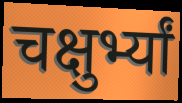
चक्षुर्भ्यां